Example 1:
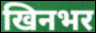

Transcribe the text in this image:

खिनभर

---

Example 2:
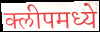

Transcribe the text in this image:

क्लीपमध्ये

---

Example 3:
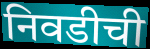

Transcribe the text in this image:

निवडीची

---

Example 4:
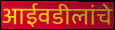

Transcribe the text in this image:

आईवडीलांचे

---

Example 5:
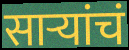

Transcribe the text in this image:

साऱ्यांचं